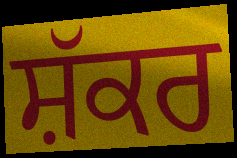
ਸ਼ੱਕਰ